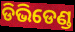
ଡିଭିଡେଣ୍ଡ